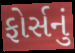
ફોર્સનું